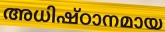
അധിഷ്ഠാനമായ